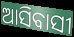
ଆସିବାସୀ